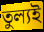
তুল্যই